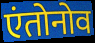
एंतोनोव